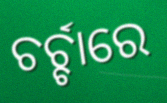
ଚର୍ଚ୍ଚାରେ